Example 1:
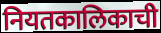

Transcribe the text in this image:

नियतकालिकाची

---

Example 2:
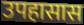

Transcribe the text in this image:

उपहासास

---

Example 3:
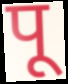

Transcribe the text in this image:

पू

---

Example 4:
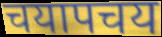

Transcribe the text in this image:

चयापचय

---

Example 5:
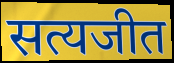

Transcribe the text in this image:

सत्यजीत